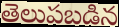
తెలుపబడిన